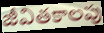
జీవితకాలపు